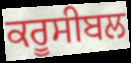
ਕਰੂਸੀਬਲ